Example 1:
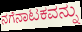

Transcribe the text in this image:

ನಗೆನಾಟಕವನ್ನು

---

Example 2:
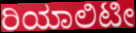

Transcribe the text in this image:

ರಿಯಾಲಿಟೀ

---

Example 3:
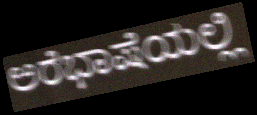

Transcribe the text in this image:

ಅರೆಭಾಷೆಯಲ್ಲಿ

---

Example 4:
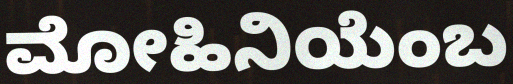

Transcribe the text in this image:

ಮೋಹಿನಿಯೆಂಬ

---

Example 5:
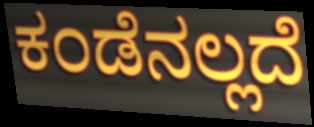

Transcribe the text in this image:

ಕಂಡೆನಲ್ಲದೆ